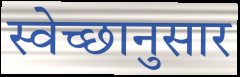
स्वेच्छानुसार